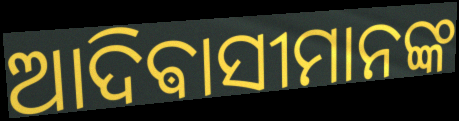
ଆଦିଵାସୀମାନଙ୍କ